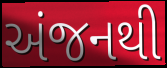
અંજનથી